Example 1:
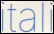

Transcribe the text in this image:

itali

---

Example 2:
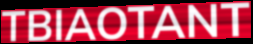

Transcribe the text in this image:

TBIAOTANT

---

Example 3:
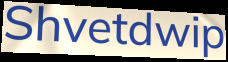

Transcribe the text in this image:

Shvetdwip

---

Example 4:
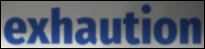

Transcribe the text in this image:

exhaution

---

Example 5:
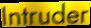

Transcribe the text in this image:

Intruder